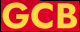
GCB